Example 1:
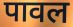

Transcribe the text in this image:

पावल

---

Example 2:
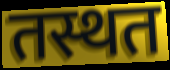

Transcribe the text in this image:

तस्थत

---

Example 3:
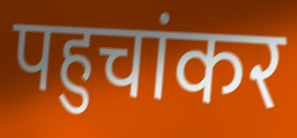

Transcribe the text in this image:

पहुचांकर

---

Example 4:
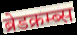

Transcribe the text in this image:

ब्रेडक्रम्ब्स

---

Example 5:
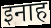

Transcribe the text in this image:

इनाह